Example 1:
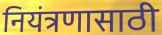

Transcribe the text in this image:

नियंत्रणासाठी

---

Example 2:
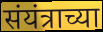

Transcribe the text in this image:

संयंत्राच्या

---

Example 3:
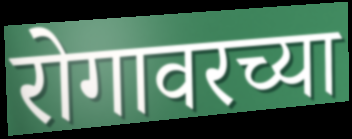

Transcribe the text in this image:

रोगावरच्या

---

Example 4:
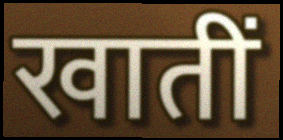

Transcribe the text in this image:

खातीं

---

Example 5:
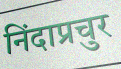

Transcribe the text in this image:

निंदाप्रचुर